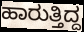
ಹಾರುತ್ತಿದ್ದ